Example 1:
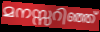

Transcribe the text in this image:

മനസ്സറിഞ്ഞ്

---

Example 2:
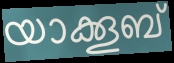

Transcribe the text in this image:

യാക്കൂബ്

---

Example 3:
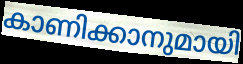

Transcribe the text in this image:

കാണിക്കാനുമായി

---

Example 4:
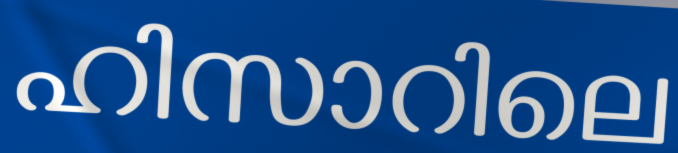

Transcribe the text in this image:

ഹിസാറിലെ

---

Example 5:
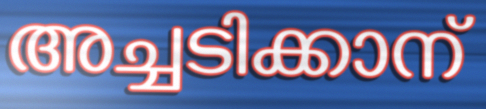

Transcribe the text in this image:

അച്ചടിക്കാന്